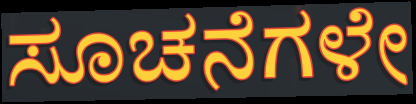
ಸೂಚನೆಗಳೇ